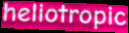
heliotropic